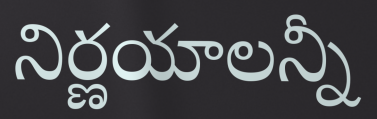
నిర్ణయాలన్నీ